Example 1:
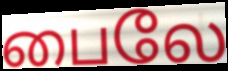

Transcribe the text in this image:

பைலே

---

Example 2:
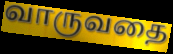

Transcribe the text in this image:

வாருவதை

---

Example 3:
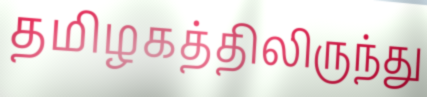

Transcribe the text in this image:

தமிழகத்திலிருந்து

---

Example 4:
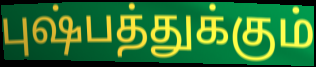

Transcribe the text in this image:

புஷ்பத்துக்கும்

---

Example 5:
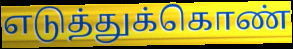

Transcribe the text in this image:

எடுத்துக்கொண்